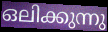
ഒലിക്കുന്നു